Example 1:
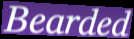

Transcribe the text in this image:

Bearded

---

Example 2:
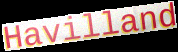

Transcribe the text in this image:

Havilland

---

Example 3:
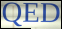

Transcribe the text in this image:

QED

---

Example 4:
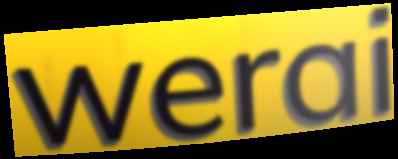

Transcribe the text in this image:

werai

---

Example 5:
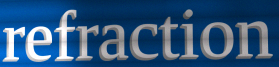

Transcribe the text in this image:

refraction